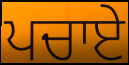
ਪਚਾਏ